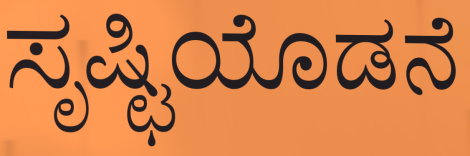
ಸೃಷ್ಟಿಯೊಡನೆ